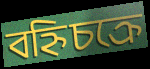
বহ্নিচক্রে